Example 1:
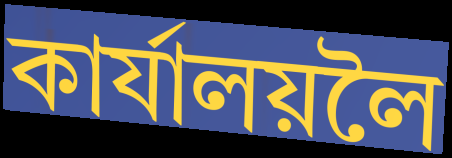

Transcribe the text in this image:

কাৰ্যালয়লৈ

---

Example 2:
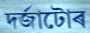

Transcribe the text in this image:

দৰ্জাটোৰ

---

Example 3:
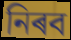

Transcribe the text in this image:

নিৰব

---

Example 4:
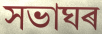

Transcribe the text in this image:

সভাঘৰ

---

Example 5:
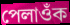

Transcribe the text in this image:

পেলাওঁক